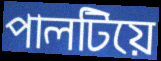
পালটিয়ে